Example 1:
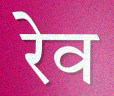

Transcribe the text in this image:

रेव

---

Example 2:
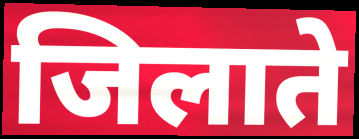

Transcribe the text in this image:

जिलाते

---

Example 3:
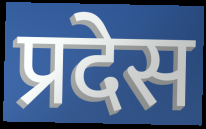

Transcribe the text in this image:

प्रदेस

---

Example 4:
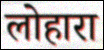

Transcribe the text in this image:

लोहारा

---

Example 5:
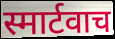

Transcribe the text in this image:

स्मार्टवाच